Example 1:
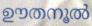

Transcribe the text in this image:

ഊതനൂൽ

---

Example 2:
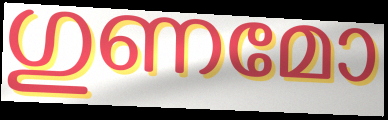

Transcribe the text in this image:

ഗുണമോ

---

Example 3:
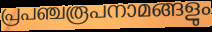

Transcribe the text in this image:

പ്രപഞ്ചരൂപനാമങ്ങളും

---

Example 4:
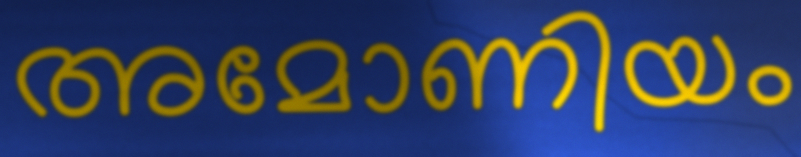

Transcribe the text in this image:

അമോണിയം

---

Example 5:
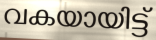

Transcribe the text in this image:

വകയായിട്ട്